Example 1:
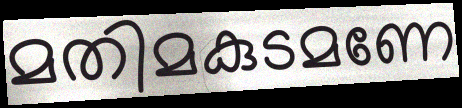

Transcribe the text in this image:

മതിമകുടമണേ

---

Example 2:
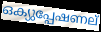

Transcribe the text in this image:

ഒക്യുപ്പേഷണല്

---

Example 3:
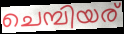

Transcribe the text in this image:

ചെമ്പിയര്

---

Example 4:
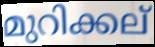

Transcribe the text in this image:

മുറിക്കല്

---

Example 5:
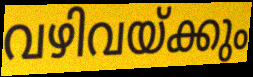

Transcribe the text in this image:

വഴിവയ്ക്കും